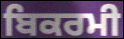
ਬਿਕਰਮੀ